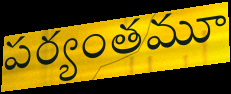
పర్యంతమూ